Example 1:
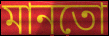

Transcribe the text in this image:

মানতো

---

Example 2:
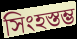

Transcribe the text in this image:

সিংহস্তম্ভ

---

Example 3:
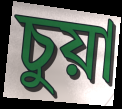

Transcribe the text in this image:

চুয়া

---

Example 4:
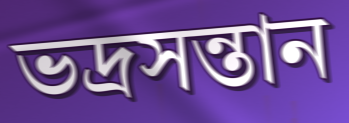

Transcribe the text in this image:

ভদ্রসন্তান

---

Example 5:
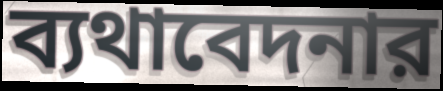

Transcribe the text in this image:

ব্যথাবেদনার